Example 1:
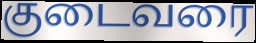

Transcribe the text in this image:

குடைவரை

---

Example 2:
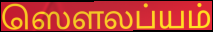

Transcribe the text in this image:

ஸௌலப்யம்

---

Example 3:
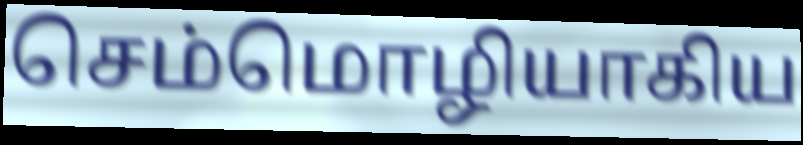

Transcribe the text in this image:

செம்மொழியாகிய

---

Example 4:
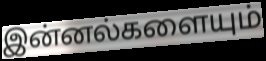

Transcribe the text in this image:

இன்னல்களையும்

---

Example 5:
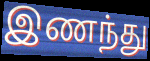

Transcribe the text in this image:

இணந்து